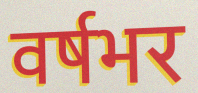
वर्षभर